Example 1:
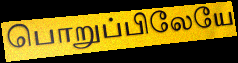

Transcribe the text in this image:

பொறுப்பிலேயே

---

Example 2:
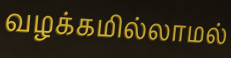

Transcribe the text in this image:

வழக்கமில்லாமல்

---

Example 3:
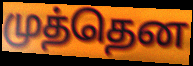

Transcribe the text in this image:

முத்தென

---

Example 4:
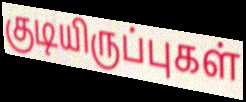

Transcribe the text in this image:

குடியிருப்புகள்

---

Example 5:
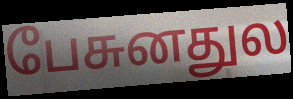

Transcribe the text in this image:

பேசுனதுல